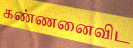
கண்ணனைவிட